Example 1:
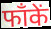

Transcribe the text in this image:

फाँकें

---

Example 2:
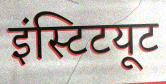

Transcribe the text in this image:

इंस्टिटयूट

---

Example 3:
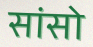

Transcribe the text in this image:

सांसो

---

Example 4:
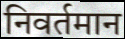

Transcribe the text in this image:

निवर्तमान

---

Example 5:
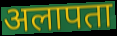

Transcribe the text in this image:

अलापता